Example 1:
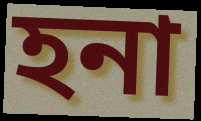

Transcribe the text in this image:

হনা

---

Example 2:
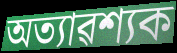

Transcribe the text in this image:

অত্যাৱশ্যক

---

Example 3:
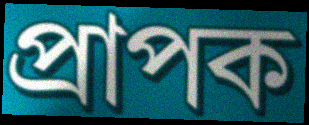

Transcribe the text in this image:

প্ৰাপক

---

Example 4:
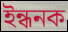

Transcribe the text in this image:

ইন্ধনক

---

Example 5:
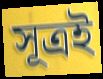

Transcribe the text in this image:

সূত্ৰই